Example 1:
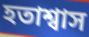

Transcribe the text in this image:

হতাশ্বাস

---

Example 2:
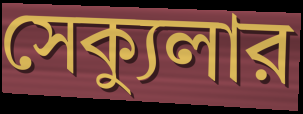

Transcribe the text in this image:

সেক্যুলার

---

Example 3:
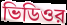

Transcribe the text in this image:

ভিডিওর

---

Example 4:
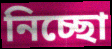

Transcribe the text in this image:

নিচ্ছো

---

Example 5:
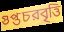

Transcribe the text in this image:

গুপ্তচরবৃত্তি